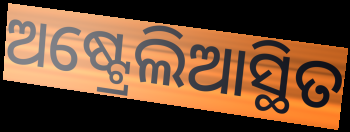
ଅଷ୍ଟ୍ରେଲିଆସ୍ଥିତ